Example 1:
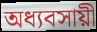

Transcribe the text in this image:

অধ্যবসায়ী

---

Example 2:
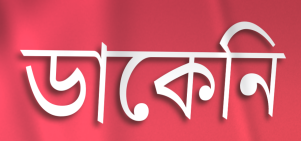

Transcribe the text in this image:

ডাকেনি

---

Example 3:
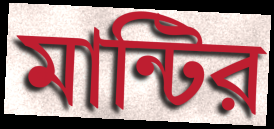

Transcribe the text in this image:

মান্টির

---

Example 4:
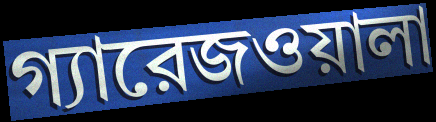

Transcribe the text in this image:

গ্যারেজওয়ালা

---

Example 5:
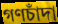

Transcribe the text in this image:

গণচাঁদা